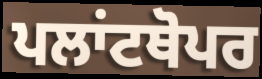
ਪਲਾਂਟਥੋਪਰ